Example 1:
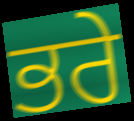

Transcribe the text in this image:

ਭਰੇ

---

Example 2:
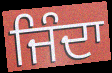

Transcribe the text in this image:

ਜਿੰਦਾ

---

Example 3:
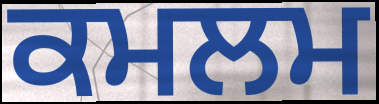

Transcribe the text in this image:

ਕਮਲਮ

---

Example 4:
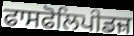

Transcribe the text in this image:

ਫਾਸਫੋਲਿਪੀਡਜ਼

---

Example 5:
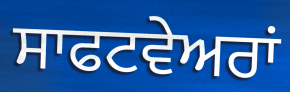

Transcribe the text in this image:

ਸਾਫਟਵੇਅਰਾਂ